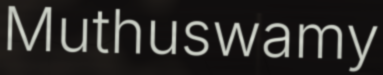
Muthuswamy